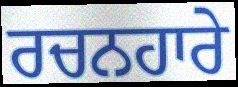
ਰਚਨਹਾਰੇ